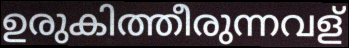
ഉരുകിത്തീരുന്നവള്